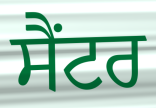
ਸੈਂਟਰ